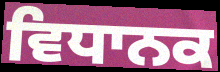
ਵਿਧਾਨਕ